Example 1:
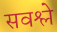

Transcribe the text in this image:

सवश्ले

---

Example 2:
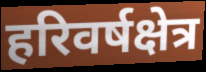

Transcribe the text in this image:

हरिवर्षक्षेत्र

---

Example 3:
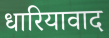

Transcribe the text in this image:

धारियावाद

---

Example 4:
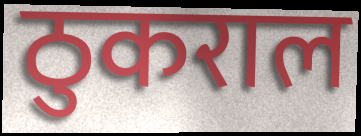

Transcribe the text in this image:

ठुकराल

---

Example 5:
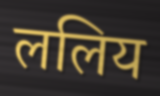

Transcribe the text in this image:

ललिय